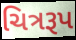
ચિત્રરૂપ